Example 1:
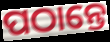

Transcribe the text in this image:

ପଠାନ୍ତେ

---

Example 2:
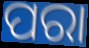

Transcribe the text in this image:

ପରା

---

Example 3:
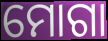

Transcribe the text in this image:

ମୋଗା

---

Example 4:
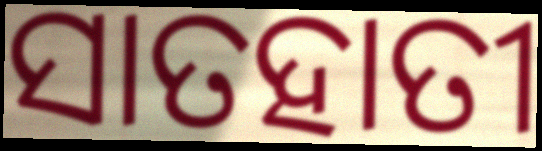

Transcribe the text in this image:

ସାତହାତୀ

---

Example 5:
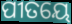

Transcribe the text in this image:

ପୀତୟେ